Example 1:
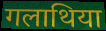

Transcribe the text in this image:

गलाथिया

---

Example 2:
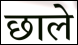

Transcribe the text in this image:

छाले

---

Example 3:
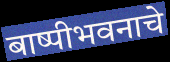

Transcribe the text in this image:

बाष्पीभवनाचे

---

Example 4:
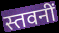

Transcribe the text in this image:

स्तवनीं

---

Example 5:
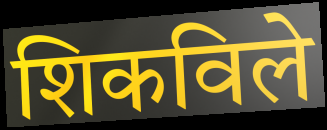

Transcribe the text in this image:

शिकविले